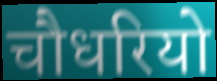
चौधरियो